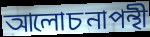
আলোচনাপন্থী